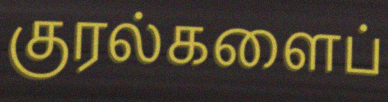
குரல்களைப்